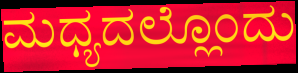
ಮಧ್ಯದಲ್ಲೊಂದು